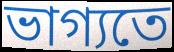
ভাগ্যতে